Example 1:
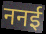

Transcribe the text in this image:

ननई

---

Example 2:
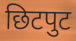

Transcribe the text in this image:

छिटपुट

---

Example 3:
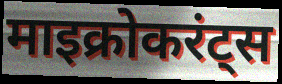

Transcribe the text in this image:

माइक्रोकरंट्स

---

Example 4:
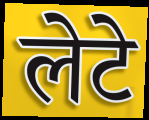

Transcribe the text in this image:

लेटे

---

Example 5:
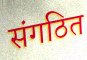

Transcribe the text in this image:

संगठित